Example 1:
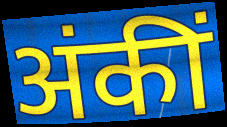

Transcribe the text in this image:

अंकीं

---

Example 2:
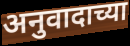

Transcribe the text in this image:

अनुवादाच्या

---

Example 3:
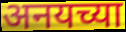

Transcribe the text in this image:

अनयच्या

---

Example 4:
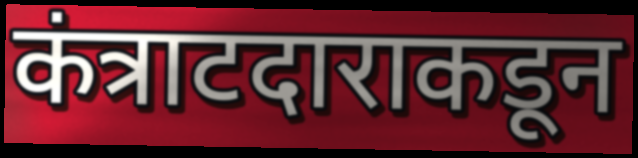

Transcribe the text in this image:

कंत्राटदाराकडून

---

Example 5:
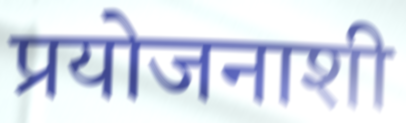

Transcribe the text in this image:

प्रयोजनाशी